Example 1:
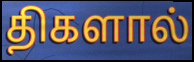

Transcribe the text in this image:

திகளால்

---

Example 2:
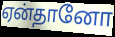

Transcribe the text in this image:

ஏன்தானோ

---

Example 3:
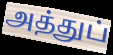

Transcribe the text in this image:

அத்துப்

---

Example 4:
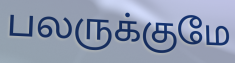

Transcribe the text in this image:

பலருக்குமே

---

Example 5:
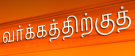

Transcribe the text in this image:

வர்க்கத்திற்குத்